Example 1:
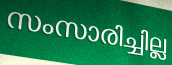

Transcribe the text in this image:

സംസാരിച്ചില്ല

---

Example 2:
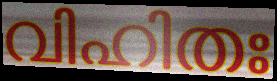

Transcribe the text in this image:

വിഹിതഃ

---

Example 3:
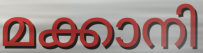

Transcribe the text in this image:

മക്കാനി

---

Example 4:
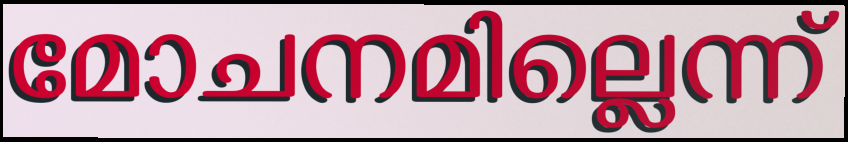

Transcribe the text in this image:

മോചനമില്ലെന്ന്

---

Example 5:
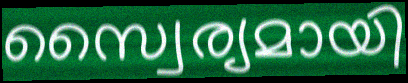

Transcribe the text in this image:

സ്വൈര്യമായി